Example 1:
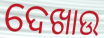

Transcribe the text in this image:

ଦେଖାଉ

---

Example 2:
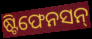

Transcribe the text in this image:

ଷ୍ଟିଫେନସନ୍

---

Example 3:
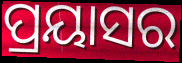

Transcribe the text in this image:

ପ୍ରୟାସର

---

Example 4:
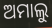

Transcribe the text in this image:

ଅମାଲୁ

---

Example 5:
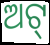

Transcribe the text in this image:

ଅଟ୍